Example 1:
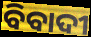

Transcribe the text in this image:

ବିବାଦୀ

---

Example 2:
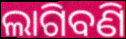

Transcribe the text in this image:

ଲାଗିବଣି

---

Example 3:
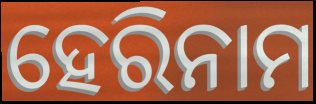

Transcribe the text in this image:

ହେରିନାମ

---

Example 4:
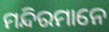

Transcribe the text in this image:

ମନ୍ଦିରମାନେ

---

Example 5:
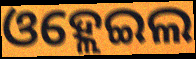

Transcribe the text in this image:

ଓହ୍ଲେଇଲ